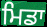
ਮਿਡਾ